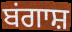
ਬਂਗਾਸ਼